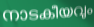
നാടകീയവും